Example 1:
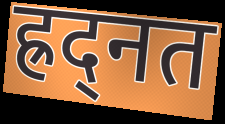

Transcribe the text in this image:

ह्रद्नत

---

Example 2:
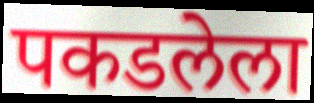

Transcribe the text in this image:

पकडलेला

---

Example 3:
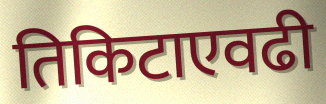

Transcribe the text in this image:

तिकिटाएवढी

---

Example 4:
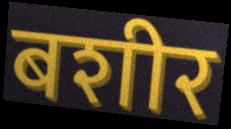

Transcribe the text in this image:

बशीर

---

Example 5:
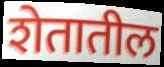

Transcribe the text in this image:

शेतातील